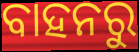
ବାହନରୁ